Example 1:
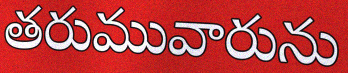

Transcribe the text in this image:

తరుమువారును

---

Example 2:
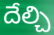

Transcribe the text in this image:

దేల్చి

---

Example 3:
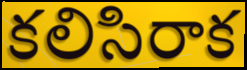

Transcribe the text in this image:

కలిసిరాక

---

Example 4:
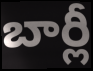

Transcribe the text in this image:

బార్లీ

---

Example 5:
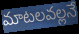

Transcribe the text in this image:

మాటలవల్లనే